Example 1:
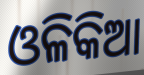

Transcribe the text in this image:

ଓଳିକିଆ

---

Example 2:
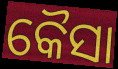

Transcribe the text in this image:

କୈସା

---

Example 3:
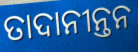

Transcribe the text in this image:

ତାଦାନୀନ୍ତନ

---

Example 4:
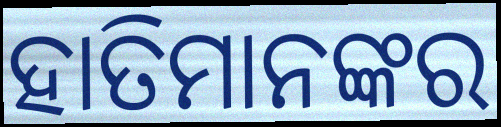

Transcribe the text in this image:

ହାତିମାନଙ୍କର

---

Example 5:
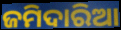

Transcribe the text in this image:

ଜମିଦାରିଆ